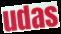
udas